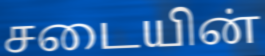
சடையின்